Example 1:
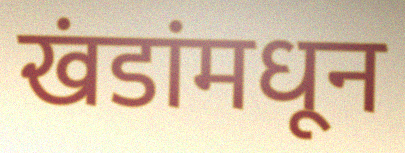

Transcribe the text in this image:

खंडांमधून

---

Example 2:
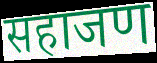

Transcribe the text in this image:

सहाजण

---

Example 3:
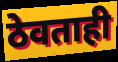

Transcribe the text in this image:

ठेवताही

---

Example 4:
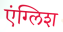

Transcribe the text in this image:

एंग्लिश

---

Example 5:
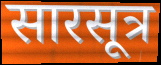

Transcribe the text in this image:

सारसूत्र